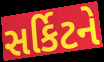
સર્કિટને